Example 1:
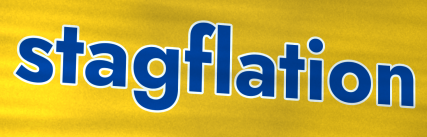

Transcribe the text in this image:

stagflation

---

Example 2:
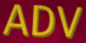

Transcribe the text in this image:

ADV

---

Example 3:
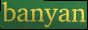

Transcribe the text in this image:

banyan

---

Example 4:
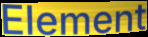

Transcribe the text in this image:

Element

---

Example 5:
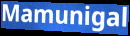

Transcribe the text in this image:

Mamunigal